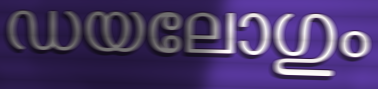
ഡയലോഗും